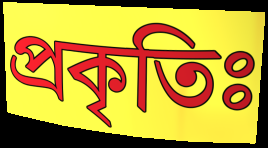
প্রকৃতিঃ